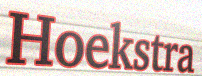
Hoekstra